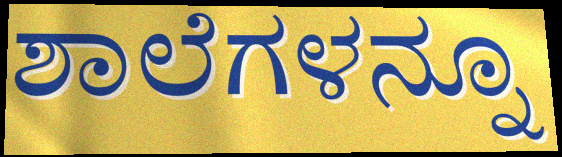
ಶಾಲೆಗಳನ್ನೂ